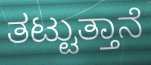
ತಟ್ಟುತ್ತಾನೆ